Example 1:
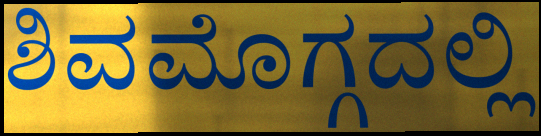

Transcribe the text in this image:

ಶಿವಮೊಗ್ಗದಲ್ಲಿ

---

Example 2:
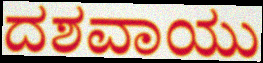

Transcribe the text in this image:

ದಶವಾಯು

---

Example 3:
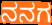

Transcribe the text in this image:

ನನಗ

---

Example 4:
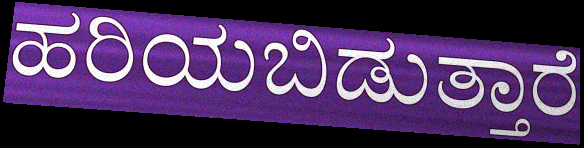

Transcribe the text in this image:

ಹರಿಯಬಿಡುತ್ತಾರೆ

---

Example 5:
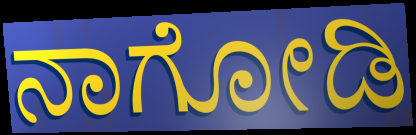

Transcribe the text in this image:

ನಾಗೋಡಿ